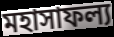
মহাসাফল্য